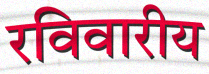
रविवारीय